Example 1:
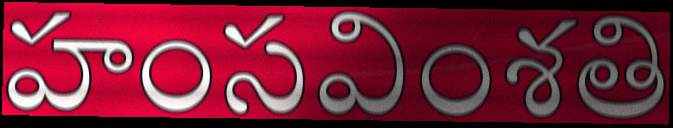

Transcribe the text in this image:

హంసవింశతి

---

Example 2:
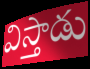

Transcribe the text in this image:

విస్తాడు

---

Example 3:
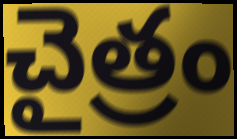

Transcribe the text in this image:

చైత్రం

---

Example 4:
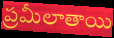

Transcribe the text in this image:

ప్రమీలాతాయి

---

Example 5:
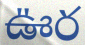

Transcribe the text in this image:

ఊర